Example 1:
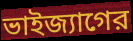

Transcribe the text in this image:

ভাইজ্যাগের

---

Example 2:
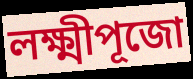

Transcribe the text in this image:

লক্ষ্মীপূজো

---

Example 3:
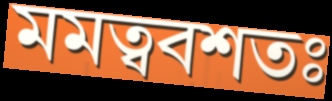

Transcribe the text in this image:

মমত্ববশতঃ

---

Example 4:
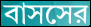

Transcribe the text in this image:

বাসসের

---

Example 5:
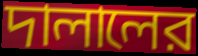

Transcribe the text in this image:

দালালের